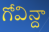
గోవిన్దా